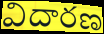
విదారణ